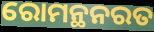
ରୋମନ୍ଥନରତ